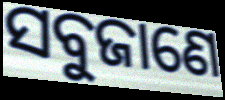
ସବୁଜାଣେ